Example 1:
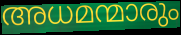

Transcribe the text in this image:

അധമന്മാരും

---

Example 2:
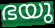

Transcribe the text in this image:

ഭയു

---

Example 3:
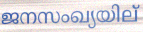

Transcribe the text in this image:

ജനസംഖ്യയില്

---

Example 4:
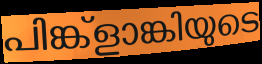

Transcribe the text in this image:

പിങ്ക്ളാങ്കിയുടെ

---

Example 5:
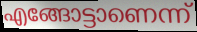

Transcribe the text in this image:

എങ്ങോട്ടാണെന്ന്